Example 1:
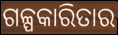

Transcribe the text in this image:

ଗଳ୍ପକାରିତାର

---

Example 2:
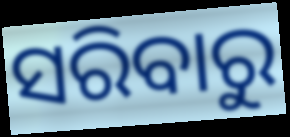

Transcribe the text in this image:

ସରିବାରୁ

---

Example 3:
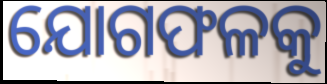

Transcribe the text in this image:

ଯୋଗଫଳକୁ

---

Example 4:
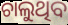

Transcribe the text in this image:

ଚାଲୁଥିବ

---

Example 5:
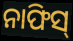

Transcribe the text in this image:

ନାଫିସ୍